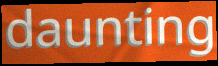
daunting